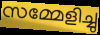
സമ്മേളിച്ചു